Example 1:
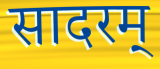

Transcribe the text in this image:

सादरम्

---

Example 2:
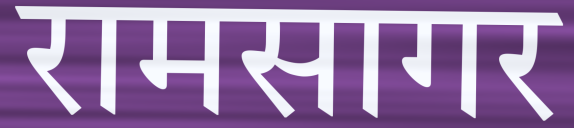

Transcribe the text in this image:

रामसागर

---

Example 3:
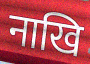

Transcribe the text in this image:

नाखि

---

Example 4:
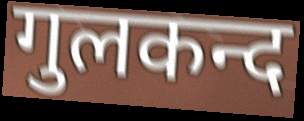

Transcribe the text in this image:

गुलकन्द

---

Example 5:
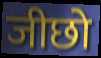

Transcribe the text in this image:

जीछो